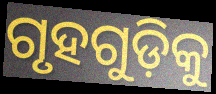
ଗୃହଗୁଡ଼ିକୁ